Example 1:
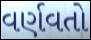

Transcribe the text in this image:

વર્ણવતો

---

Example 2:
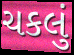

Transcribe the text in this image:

ચકલું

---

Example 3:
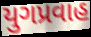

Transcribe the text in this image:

યુગપ્રવાહ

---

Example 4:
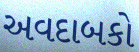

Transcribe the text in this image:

અવદાબકો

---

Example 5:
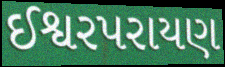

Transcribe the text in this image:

ઈશ્વરપરાયણ